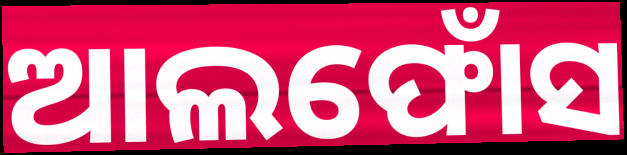
ଆଲଫୋଁସ